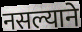
नसल्‍याने